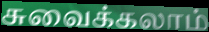
சுவைக்கலாம்